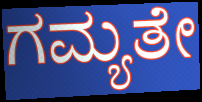
ಗಮ್ಯತೇ